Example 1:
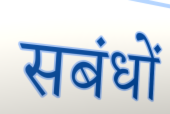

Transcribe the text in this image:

सबंधों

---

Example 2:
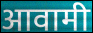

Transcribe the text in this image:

आवामी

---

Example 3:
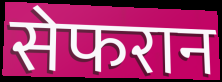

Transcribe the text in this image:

सेफरान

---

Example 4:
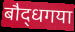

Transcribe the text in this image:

बौद्धगया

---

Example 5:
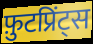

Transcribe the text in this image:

फ़ुटप्रिंट्स